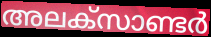
അലക്സാണ്ടർ